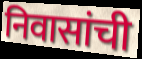
निवासांची